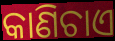
କାଣିଚାଏ